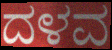
ದಳವ